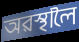
অৱস্থালৈ